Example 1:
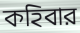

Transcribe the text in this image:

কহিবার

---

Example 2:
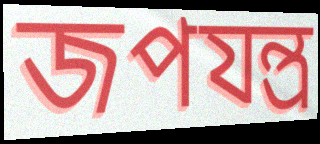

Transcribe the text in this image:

জপযন্ত্র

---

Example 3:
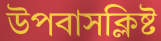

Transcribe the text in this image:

উপবাসক্লিষ্ট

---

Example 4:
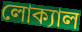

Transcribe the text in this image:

লোক্যাল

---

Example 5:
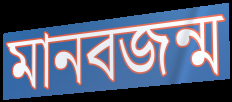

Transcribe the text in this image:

মানবজন্ম